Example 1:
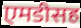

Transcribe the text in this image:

एमडीसह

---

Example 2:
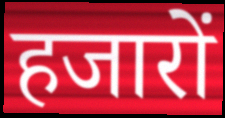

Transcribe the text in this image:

हजारों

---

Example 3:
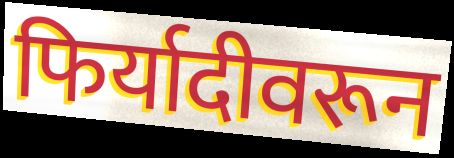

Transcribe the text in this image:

फिर्यादीवरून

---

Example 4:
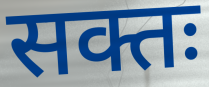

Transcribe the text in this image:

सक्तः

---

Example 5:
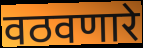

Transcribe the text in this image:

वठवणारे